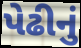
પેઢીનું